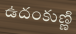
ఉదంకుణ్ణి